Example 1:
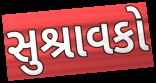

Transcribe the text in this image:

સુશ્રાવકો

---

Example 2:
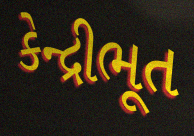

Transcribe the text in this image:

કેન્દ્રીભૂત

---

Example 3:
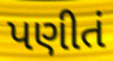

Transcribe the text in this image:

પણીતં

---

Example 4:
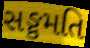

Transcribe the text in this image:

સઙ્કમતિ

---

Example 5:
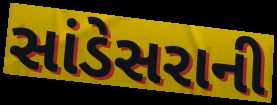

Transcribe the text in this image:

સાંડેસરાની